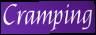
Cramping